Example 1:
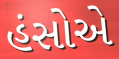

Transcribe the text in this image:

હંસોએ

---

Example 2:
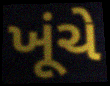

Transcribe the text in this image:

ખૂંચે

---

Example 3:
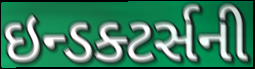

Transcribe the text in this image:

ઇન્ડક્ટર્સની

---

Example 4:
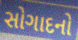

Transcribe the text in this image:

સોગાદનો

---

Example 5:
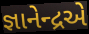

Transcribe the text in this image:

જ્ઞાનેન્દ્રએ